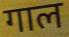
गाल